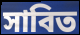
সাবিত